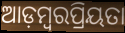
ଆଡ଼ମ୍ବରପ୍ରିୟତା